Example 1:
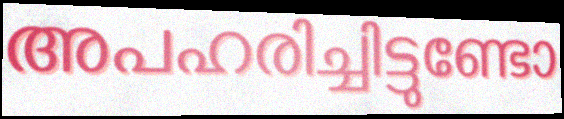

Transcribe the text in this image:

അപഹരിച്ചിട്ടുണ്ടോ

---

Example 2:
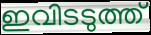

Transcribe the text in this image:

ഇവിടടുത്ത്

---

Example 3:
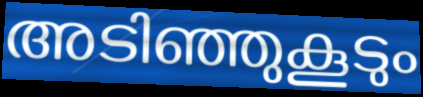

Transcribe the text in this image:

അടിഞ്ഞുകൂടും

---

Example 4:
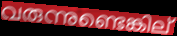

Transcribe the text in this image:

വരുന്നുണ്ടെങ്കില്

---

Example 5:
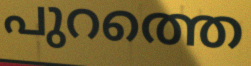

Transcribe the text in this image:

പുറത്തെ